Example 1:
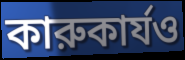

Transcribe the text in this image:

কারুকার্যও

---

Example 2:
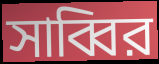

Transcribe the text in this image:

সাব্বির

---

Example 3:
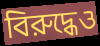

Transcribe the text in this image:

বিরুদ্ধেও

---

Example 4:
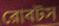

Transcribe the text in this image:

রোবটস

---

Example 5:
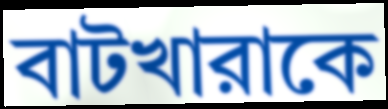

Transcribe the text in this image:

বাটখারাকে